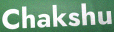
Chakshu